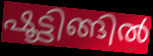
ഷൂട്ടിങ്ങിൽ